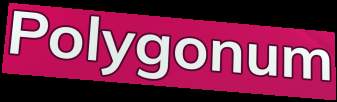
Polygonum